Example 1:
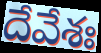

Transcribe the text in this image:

దేవేశః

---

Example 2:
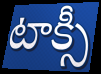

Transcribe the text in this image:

టాక్సీ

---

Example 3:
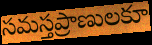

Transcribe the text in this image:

సమస్తప్రాణులకూ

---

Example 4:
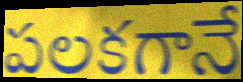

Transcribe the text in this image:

పలకగానే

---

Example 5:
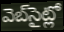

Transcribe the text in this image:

వెబ్‌సైట్లో